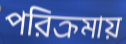
পরিক্রমায়